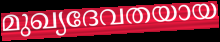
മുഖ്യദേവതയായ